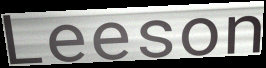
Leeson